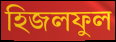
হিজলফুল